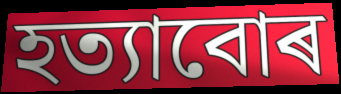
হত্যাবোৰ